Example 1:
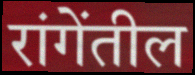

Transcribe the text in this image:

रांगेंतील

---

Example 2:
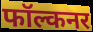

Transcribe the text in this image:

फॉल्कनर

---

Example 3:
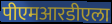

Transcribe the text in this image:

पीएमआरडीएला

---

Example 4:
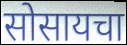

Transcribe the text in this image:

सोसायचा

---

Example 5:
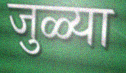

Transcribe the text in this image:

जुळ्या